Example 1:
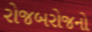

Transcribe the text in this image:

રોજબરોજનો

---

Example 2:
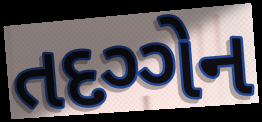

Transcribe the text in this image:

તદગ્ગેન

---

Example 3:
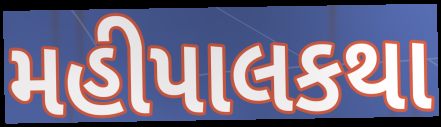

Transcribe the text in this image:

મહીપાલકથા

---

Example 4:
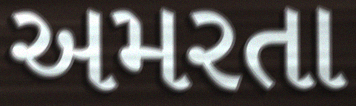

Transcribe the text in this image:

અમરતા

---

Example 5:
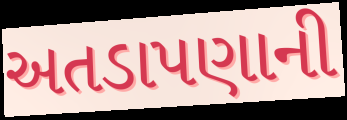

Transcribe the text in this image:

અતડાપણાની